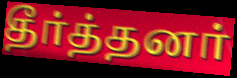
தீர்த்தனர்